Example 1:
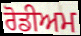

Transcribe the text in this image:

ਰੋਡੀਅਮ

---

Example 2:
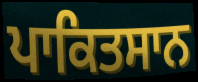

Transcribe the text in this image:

ਪਾਕਿਤਸਾਨ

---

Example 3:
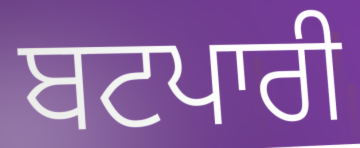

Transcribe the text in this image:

ਬਟਪਾਰੀ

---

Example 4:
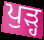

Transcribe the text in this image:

ਪੁੜ੍ਹ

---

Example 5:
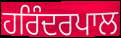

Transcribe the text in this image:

ਹਰਿੰਦਰਪਾਲ